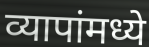
व्यापांमध्ये